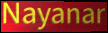
Nayanar